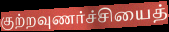
குற்றவுணர்ச்சியைத்